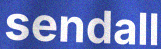
sendall